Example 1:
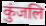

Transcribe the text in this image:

कुंजलि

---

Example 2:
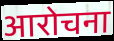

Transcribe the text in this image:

आरोचना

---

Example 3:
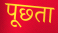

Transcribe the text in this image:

पूछ्ता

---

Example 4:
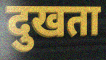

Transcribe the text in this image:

दुखता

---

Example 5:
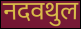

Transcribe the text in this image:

नदवथुल